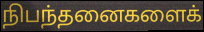
நிபந்தனைகளைக்